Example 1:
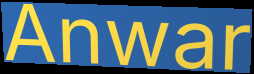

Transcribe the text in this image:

Anwar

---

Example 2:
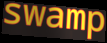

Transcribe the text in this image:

swamp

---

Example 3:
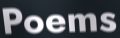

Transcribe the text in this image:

Poems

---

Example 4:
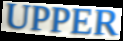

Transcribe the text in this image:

UPPER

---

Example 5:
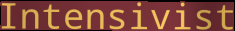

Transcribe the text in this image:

Intensivist